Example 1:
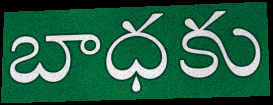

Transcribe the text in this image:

బాధకు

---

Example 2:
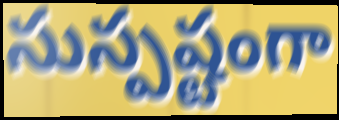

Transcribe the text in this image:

సుస్పష్టంగా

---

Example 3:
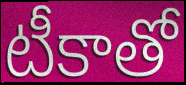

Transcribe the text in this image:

టీకాతో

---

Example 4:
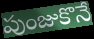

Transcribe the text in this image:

పుంజుకొనే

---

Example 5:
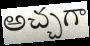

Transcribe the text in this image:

అచ్చగా